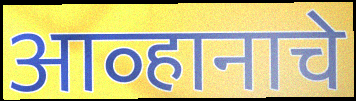
आव्हानाचे